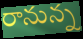
రానున్న